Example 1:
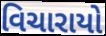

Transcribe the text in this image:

વિચારાયો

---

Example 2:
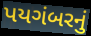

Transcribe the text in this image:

પયગંબરનું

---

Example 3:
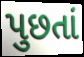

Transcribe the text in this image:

પુછતાં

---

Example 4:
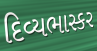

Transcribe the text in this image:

દિવ્યભાસ્કર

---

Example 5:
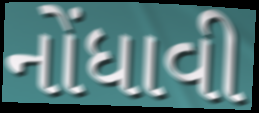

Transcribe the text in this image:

નોંધાવી